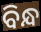
ବିନ୍ଧ